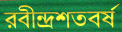
রবীন্দ্রশতবর্ষ